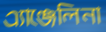
এ্যাঞ্জেলিনা